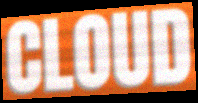
CLOUD